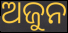
ଅଜୁନ